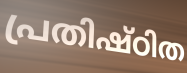
പ്രതിഷ്ഠിത